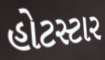
હોટસ્ટાર